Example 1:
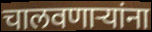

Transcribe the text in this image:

चालवणार्‍यांना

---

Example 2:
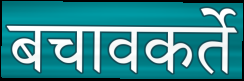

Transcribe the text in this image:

बचावकर्ते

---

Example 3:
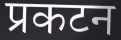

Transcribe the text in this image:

प्रकटन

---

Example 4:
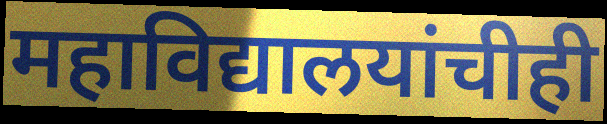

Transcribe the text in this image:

महाविद्यालयांचीही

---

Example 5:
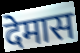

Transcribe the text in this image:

देमास